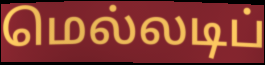
மெல்லடிப்